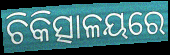
ଚିକିତ୍ସାଳୟରେ